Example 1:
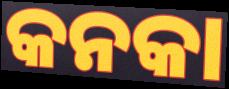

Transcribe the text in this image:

କନକା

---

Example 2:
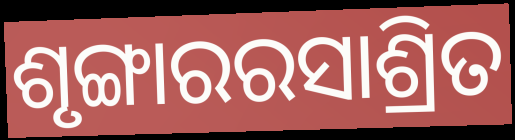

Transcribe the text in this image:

ଶୃଙ୍ଗାରରସାଶ୍ରିତ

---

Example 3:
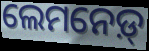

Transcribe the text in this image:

ଲେମନେଡ଼୍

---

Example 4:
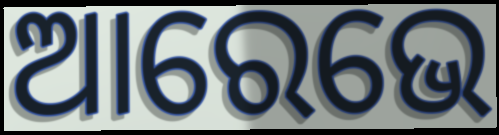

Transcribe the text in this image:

ଆରେଭେ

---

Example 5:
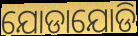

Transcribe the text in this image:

ଯୋଡାଯୋଡି